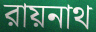
রায়নাথ